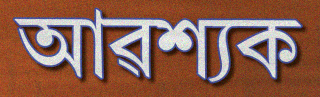
আৱশ্যক